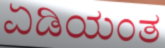
ಏಡಿಯಂತ